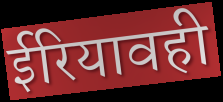
ईरियावही